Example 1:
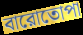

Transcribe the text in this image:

বারোতোপা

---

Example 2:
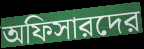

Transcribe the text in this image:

অফিসারদের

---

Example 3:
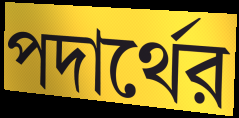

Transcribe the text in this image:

পদার্থের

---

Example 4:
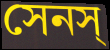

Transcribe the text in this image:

সেনস্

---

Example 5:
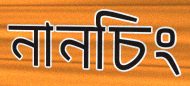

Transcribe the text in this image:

নানচিং